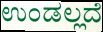
ಉಂಡಲ್ಲದೆ